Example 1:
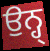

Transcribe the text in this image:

ਉਨ੍ਹ੍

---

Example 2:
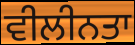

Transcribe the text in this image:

ਵੀਲੀਨਤਾ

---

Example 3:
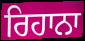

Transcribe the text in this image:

ਰਿਹਾਨਾ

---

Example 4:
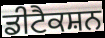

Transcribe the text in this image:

ਡੀਟੈਕਸ਼ਨ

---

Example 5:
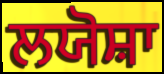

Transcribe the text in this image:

ਲਯੋਸ਼ਾ